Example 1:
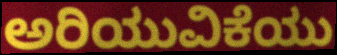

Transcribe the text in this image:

ಅರಿಯುವಿಕೆಯು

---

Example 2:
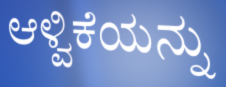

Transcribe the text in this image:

ಆಳ್ವಿಕೆಯನ್ನು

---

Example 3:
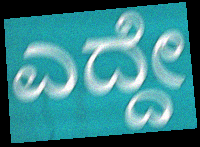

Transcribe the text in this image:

ಎದ್ದೇ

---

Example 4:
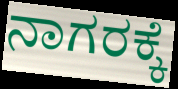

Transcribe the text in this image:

ನಾಗರಕ್ಕೆ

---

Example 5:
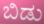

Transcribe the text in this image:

ಬಿಡು